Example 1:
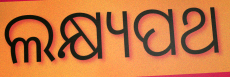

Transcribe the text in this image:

ଲକ୍ଷ୍ୟପଥ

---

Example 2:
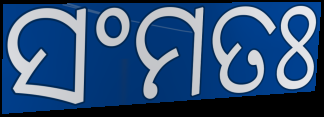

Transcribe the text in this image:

ସଂମତଃ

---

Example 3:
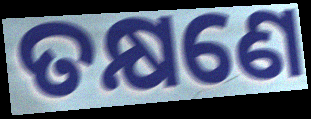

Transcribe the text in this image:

ତକ୍ଷଣେ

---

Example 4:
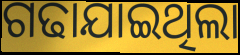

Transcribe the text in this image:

ଗଢାଯାଇଥିଲା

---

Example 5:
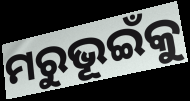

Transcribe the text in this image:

ମରୁଭୂଇଁକୁ